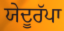
ਯੇਦੂਰੱਪਾ